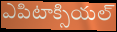
ఎపిటాక్సియల్